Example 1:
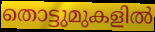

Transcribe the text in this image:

തൊട്ടുമുകളിൽ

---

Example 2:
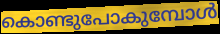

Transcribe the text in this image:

കൊണ്ടുപോകുമ്പോൾ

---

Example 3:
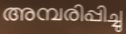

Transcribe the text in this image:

അമ്പരിപ്പിച്ചു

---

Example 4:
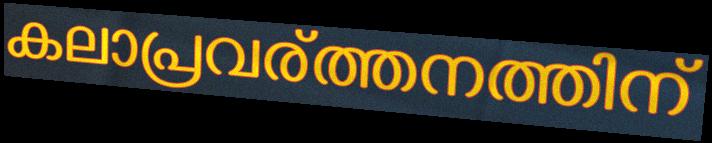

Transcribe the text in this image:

കലാപ്രവര്ത്തനത്തിന്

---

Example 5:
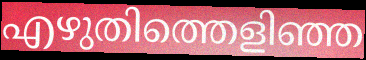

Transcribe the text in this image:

എഴുതിത്തെളിഞ്ഞ